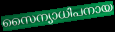
സൈന്യാധിപനായ